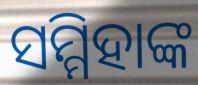
ସମ୍ମିହାଙ୍କ